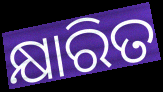
କ୍ଷାରିତ